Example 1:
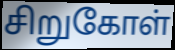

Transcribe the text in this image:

சிறுகோள்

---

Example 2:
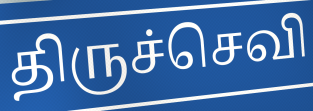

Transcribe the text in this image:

திருச்செவி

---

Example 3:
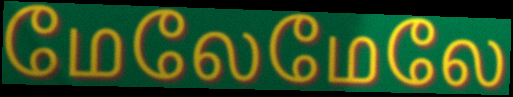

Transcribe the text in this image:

மேலேமேலே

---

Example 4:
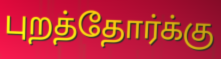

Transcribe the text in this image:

புறத்தோர்க்கு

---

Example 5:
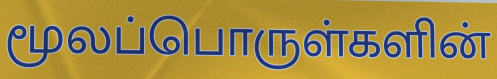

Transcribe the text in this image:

மூலப்பொருள்களின்